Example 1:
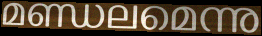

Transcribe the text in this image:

മണ്ഡലമെന്നു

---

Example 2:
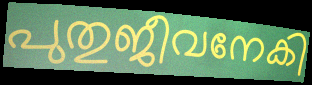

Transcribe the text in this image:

പുതുജീവനേകി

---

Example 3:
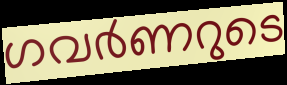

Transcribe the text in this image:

ഗവർണറുടെ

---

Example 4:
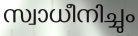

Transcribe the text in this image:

സ്വാധീനിച്ചും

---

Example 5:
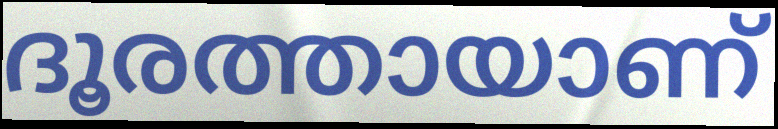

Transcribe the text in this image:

ദൂരത്തായാണ്